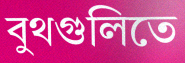
বুথগুলিতে